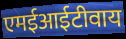
एमईआईटीवाय